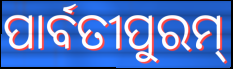
ପାର୍ବତୀପୁରମ୍